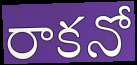
రాకనో